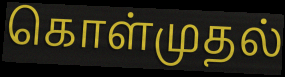
கொள்முதல்